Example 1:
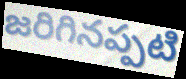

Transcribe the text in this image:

జరిగినప్పటి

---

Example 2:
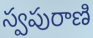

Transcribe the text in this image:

స్వపురాణి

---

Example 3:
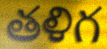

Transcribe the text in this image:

తళిగ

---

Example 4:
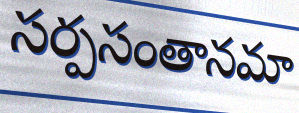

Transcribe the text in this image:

సర్పసంతానమా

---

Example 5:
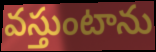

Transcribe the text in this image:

వస్తుంటాను